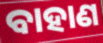
ବାହାଣ